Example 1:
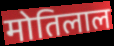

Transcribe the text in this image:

मोतिलाल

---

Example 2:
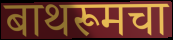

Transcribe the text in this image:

बाथरूमचा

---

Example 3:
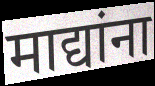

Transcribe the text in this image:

माद्यांना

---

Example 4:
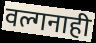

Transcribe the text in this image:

वल्गनाही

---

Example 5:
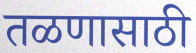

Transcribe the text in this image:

तळणासाठी